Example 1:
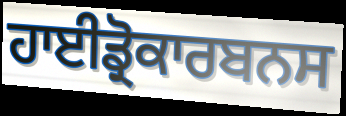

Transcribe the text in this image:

ਹਾਈਡ੍ਰੋਕਾਰਬਨਸ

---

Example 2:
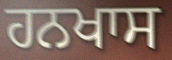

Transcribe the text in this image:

ਹਨਖਾਸ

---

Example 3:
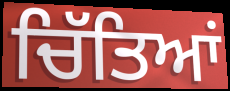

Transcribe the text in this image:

ਚਿੱਤਿਆਂ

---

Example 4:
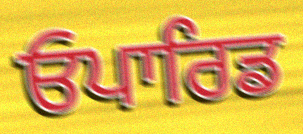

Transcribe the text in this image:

ਓਪਾਰਿਡ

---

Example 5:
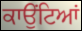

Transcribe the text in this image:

ਕਾਉਂਟਿਆਂ